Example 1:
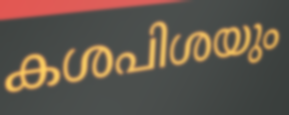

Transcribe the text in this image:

കശപിശയും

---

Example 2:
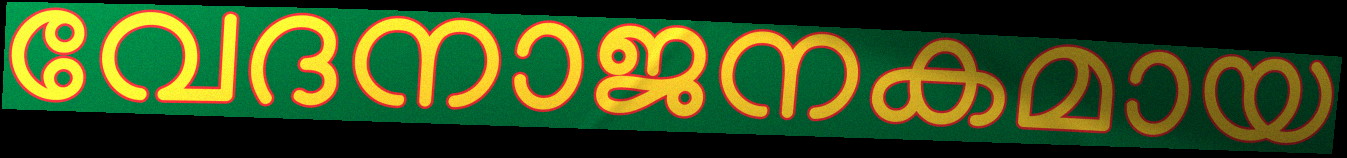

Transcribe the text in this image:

വേദനാജനകമായ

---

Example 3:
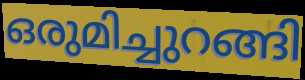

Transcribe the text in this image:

ഒരുമിച്ചുറങ്ങി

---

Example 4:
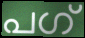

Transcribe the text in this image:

പഗ്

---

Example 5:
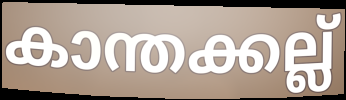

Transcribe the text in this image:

കാന്തക്കല്ല്